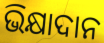
ଭିକ୍ଷାଦାନ